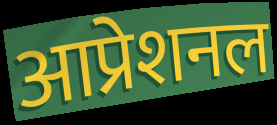
आप्रेशनल